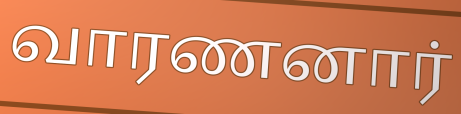
வாரணனார்